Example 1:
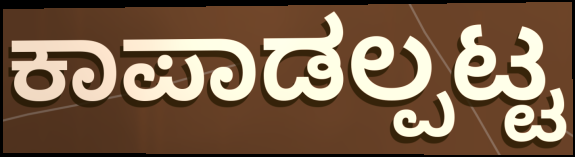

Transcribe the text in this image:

ಕಾಪಾಡಲ್ಪಟ್ಟ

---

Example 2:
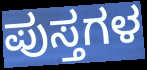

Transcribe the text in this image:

ಪುಸ್ತಗಳ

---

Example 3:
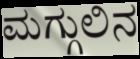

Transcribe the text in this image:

ಮಗ್ಗುಲಿನ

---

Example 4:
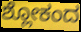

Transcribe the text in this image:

ಶ್ಲೋಕಂದ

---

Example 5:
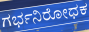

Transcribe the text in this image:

ಗರ್ಭನಿರೋಧಕ